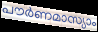
പൗർണമാസ്യാം